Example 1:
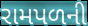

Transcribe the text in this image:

રામપળની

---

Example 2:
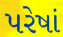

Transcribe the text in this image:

પરેષાં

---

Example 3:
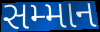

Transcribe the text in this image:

સમ્માન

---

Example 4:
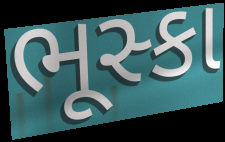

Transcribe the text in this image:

ભૂસ્કા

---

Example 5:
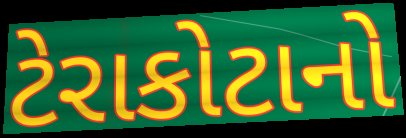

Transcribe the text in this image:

ટેરાકોટાનો